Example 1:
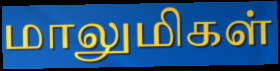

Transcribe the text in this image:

மாலுமிகள்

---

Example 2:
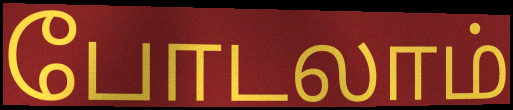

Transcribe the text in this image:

போடலாம்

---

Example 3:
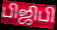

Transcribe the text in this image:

பிஜிபி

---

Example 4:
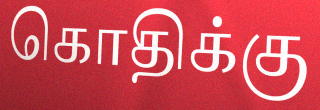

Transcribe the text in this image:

கொதிக்கு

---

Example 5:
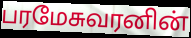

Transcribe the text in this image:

பரமேசுவரனின்